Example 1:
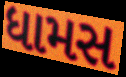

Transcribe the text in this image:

ધામસ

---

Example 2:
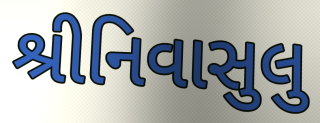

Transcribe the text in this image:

શ્રીનિવાસુલુ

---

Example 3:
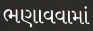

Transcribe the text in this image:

ભણાવવામાં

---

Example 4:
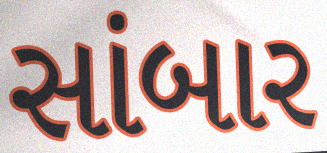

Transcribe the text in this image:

સાંબાર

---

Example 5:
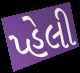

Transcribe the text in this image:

પ્હેલી